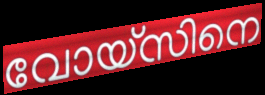
വോയ്സിനെ